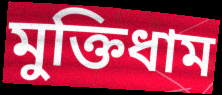
মুক্তিধাম